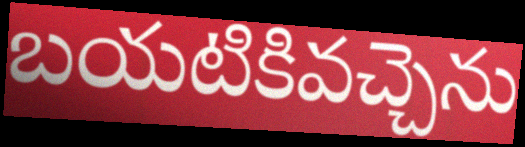
బయటికివచ్చెను